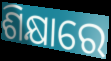
ଶିକ୍ଷାରେ